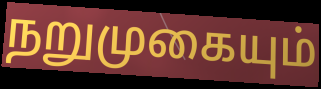
நறுமுகையும்